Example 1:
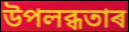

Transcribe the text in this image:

উপলব্ধতাৰ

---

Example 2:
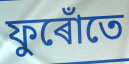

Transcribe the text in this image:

ফুৰোঁতে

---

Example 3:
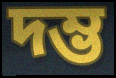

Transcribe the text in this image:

দম্ভ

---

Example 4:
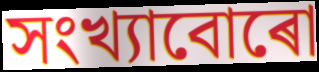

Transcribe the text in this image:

সংখ্যাবোৰো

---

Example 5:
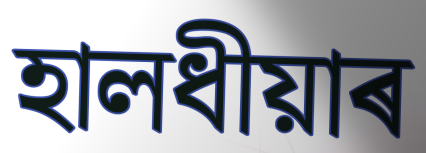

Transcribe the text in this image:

হালধীয়াৰ